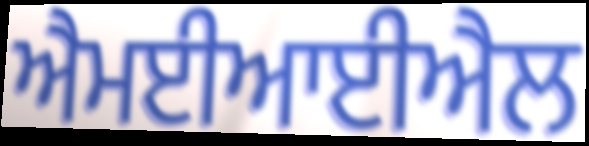
ਐਮਈਆਈਐਲ